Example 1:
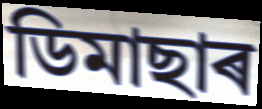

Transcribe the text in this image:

ডিমাছাৰ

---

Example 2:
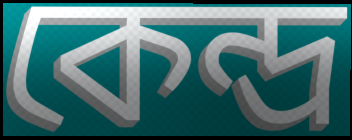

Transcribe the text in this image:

কেন্দ্ৰ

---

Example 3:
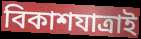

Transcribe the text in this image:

বিকাশযাত্ৰাই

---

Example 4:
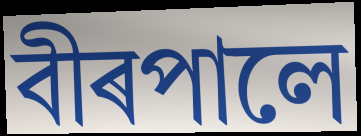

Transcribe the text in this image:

বীৰপালে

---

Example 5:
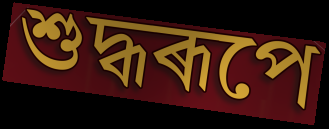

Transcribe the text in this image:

শুদ্ধৰূপে